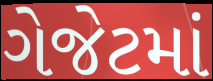
ગેજેટમાં